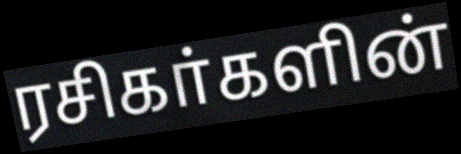
ரசிகர்களின்